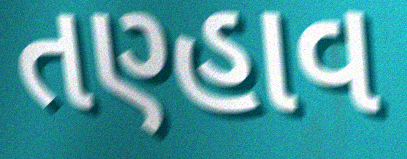
તણ્હાવ